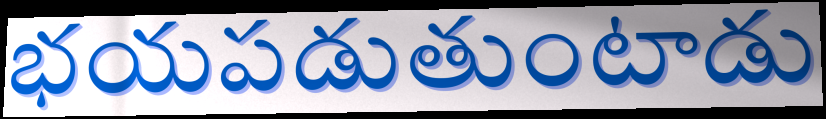
భయపడుతుంటాడు